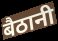
बैठानी